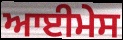
ਆਈਮੇਸ